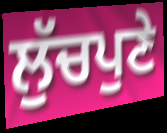
ਲੁੱਚਪੁਣੇ